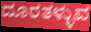
ದೂರತಳ್ಳುವ